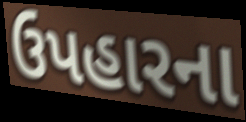
ઉપહારના